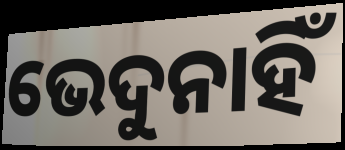
ଭେଦୁନାହିଁ